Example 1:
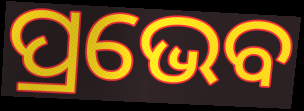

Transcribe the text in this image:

ପ୍ରଭେବ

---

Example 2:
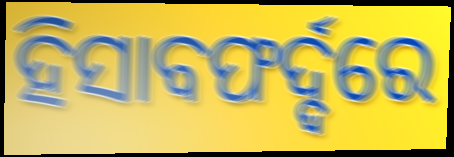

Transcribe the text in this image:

ହିସାବଫର୍ଦ୍ଦରେ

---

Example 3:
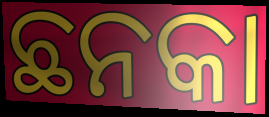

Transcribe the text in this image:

ଛନକା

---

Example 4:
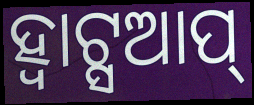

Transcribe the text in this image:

ହ୍ୱାଟ୍ସଆପ୍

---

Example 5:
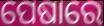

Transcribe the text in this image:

ପେଷାରେ